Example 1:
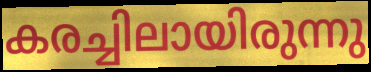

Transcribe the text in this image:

കരച്ചിലായിരുന്നു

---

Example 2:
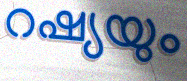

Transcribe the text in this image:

റഷ്യയും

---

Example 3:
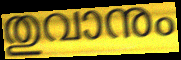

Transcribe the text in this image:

തുവാനും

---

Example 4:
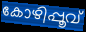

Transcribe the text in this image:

കോഴിപ്പൂവ്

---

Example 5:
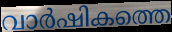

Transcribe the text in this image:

വാർഷികത്തെ